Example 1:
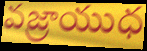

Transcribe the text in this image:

వజ్రాయుధ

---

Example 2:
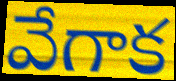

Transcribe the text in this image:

వేగాక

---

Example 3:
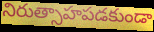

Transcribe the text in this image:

నిరుత్సాహపడకుండా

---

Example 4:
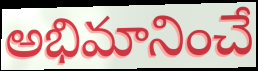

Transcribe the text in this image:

అభిమానించే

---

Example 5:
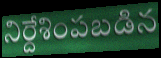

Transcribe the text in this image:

నిర్దేశింపబడిన